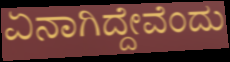
ಏನಾಗಿದ್ದೇವೆಂದು